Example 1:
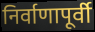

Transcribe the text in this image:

निर्वाणापूर्वी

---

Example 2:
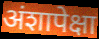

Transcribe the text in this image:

अंशापेक्षा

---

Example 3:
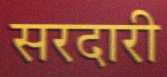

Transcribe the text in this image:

सरदारी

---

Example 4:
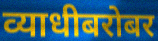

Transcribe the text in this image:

व्याधीबरोबर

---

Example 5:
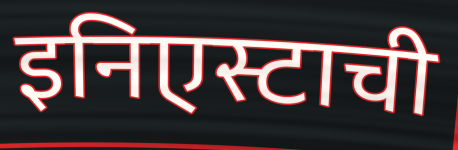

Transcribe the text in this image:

इनिएस्टाची